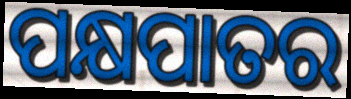
ପକ୍ଷପାତର